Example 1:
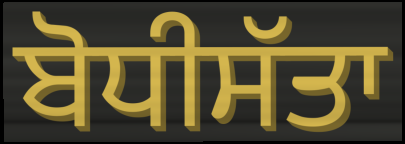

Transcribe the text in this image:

ਬੋਧੀਸੱਤਾ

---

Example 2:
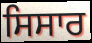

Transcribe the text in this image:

ਸਿਸਾਰ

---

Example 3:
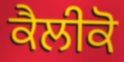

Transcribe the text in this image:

ਕੈਲੀਕੋ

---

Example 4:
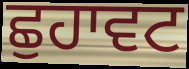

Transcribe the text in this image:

ਛੁਹਾਵਟ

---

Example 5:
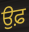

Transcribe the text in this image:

ਉਫ਼